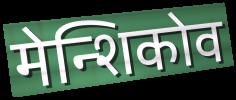
मेन्शिकोव